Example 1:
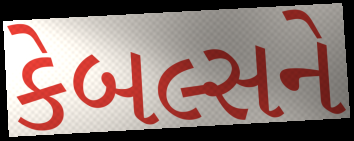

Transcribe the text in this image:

કેબલ્સને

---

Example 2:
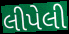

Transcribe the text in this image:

લીપેલી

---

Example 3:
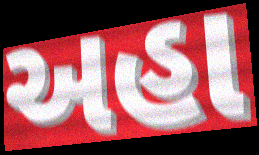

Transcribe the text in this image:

અહા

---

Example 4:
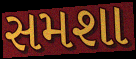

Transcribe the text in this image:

સમશા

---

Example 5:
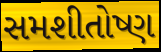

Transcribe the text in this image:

સમશીતોષ્ણ